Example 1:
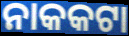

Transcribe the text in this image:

ନାକକଟା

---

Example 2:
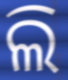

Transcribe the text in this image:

ଲି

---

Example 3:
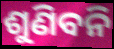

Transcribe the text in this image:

ଶୁଣିବନି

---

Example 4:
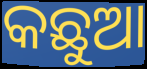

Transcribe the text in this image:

କଛୁଆ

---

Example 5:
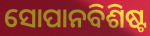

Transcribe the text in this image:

ସୋପାନବିଶିଷ୍ଟ